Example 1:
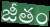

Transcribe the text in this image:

జీతం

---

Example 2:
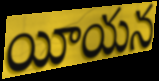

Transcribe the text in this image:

యీయన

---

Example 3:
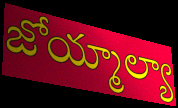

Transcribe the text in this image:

జోయ్మాల్యా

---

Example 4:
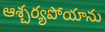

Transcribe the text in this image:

ఆశ్చర్యపోయాను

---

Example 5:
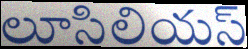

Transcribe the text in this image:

లూసిలియస్